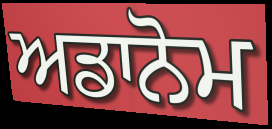
ਅਡਾਨੋਮ